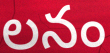
లనం